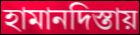
হামানদিস্তায়